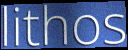
lithos